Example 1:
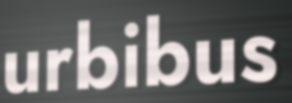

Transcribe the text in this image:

urbibus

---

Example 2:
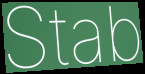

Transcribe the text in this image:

Stab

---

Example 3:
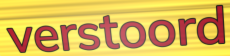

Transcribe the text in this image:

verstoord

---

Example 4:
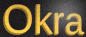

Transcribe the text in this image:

Okra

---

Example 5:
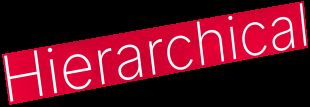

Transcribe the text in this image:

Hierarchical